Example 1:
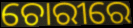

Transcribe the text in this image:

ଚୋରୀରେ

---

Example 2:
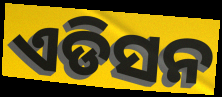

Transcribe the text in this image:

ଏଡିସନ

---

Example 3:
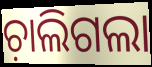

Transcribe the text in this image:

ଚ଼ାଲିଗଲା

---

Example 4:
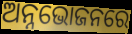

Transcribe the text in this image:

ଅନ୍ନଭୋଜନରେ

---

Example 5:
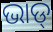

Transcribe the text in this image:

ଭାଡ୍